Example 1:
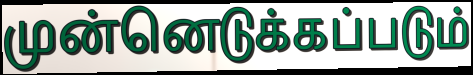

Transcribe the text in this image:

முன்னெடுக்கப்படும்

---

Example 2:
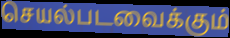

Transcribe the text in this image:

செயல்படவைக்கும்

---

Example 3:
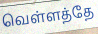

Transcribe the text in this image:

வெள்ளத்தே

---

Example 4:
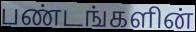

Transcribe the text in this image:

பண்டங்களின்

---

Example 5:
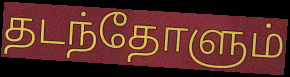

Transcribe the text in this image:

தடந்தோளும்